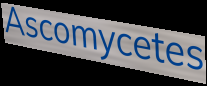
Ascomycetes